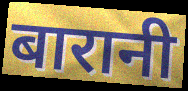
बारानी